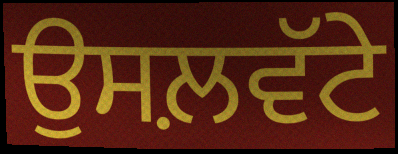
ਉਸਲ਼ਵੱਟੇ